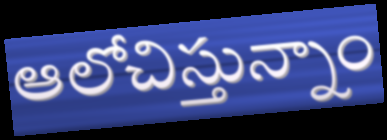
ఆలోచిస్తున్నాం